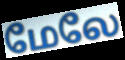
மேலே